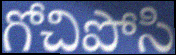
గోచిపోసి